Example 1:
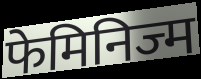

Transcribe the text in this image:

फेमिनिज्‍म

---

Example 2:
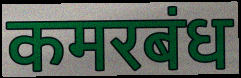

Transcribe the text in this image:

कमरबंध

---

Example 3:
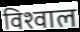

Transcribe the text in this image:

विश्वाल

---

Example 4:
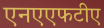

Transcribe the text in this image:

एनएएफटीए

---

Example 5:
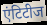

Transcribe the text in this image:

एंटिटीज